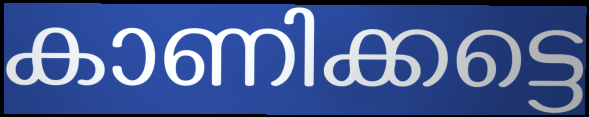
കാണിക്കട്ടെ